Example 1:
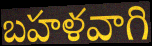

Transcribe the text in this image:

బహళవాగి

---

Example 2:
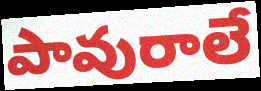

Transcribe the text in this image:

పావురాలే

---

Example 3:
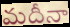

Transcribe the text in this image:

మదీనా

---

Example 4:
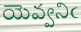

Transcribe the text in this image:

యెవ్వనిఁ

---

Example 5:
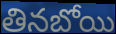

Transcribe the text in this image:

తినబోయి